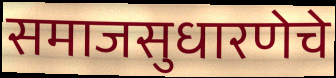
समाजसुधारणेचे